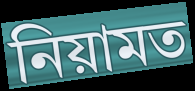
নিয়ামত